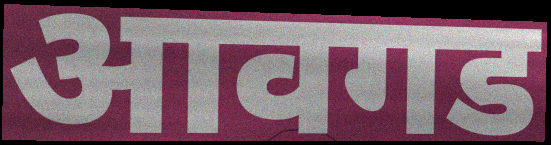
आवगड